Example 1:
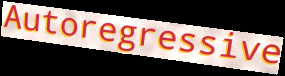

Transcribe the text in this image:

Autoregressive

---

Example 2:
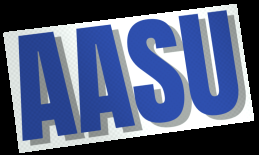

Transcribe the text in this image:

AASU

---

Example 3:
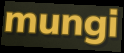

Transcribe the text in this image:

mungi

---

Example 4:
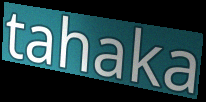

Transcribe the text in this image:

tahaka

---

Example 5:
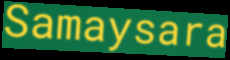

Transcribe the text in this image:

Samaysara